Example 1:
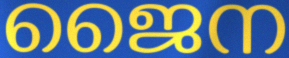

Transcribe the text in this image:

ജൈന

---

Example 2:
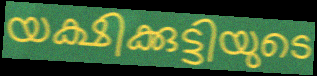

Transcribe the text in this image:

യക്ഷിക്കുട്ടിയുടെ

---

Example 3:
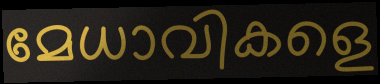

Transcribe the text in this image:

മേധാവികളെ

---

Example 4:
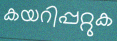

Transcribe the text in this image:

കയറിപ്പറ്റുക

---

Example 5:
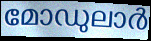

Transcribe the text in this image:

മോഡുലാർ